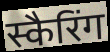
स्कैरिंग